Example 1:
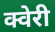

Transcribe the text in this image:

क्वेरी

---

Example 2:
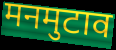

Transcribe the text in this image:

मनमुटाव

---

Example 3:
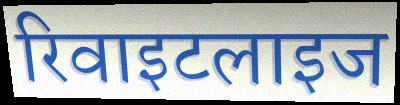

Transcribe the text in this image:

रिवाइटलाइज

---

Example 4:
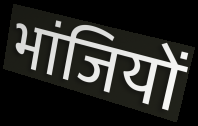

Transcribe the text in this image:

भांजियों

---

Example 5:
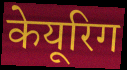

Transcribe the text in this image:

केयूरिग